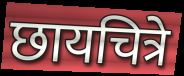
छायचित्रे